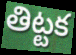
తిట్టక